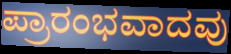
ಪ್ರಾರಂಭವಾದವು